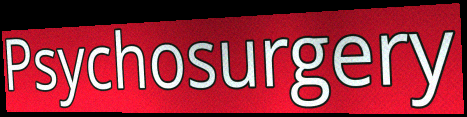
Psychosurgery